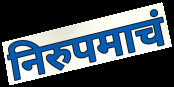
निरुपमाचं